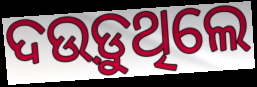
ଦଉଡ଼ୁଥିଲେ